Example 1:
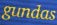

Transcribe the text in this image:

gundas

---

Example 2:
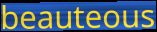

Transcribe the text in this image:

beauteous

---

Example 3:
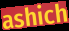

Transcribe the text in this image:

ashich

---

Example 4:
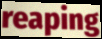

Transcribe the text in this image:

reaping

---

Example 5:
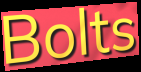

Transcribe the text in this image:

Bolts